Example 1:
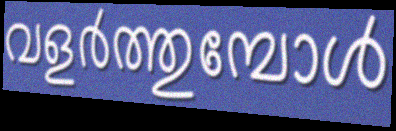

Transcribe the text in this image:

വളർത്തുമ്പോൾ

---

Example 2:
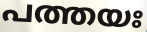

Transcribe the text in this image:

പത്തയഃ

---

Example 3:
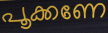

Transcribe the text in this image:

പൂക്കണേ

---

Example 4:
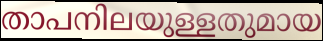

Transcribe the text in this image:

താപനിലയുള്ളതുമായ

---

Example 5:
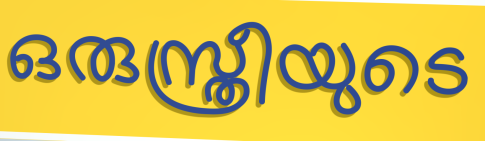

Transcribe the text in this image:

ഒരുസ്ത്രീയുടെ